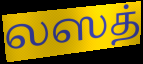
லஸத்